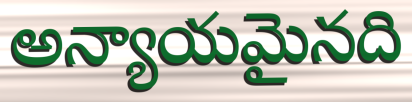
అన్యాయమైనది